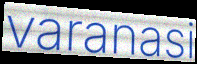
varanasi